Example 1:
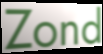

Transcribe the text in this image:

Zond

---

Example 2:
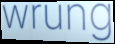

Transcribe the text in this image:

wrung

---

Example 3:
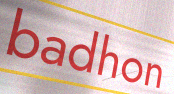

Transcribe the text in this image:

badhon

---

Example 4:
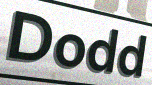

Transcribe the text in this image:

Dodd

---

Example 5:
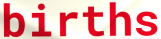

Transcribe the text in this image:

births